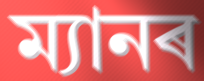
ম্যানৰ